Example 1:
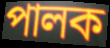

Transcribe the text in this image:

পালক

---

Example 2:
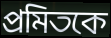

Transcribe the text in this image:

প্রমিতকে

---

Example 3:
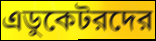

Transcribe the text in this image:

এডুকেটরদের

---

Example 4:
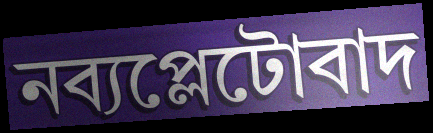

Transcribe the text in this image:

নব্যপ্লেটোবাদ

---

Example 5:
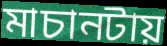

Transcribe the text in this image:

মাচানটায়